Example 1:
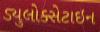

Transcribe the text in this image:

ડ્યુલોક્સેટાઇન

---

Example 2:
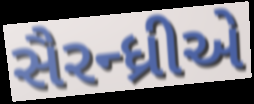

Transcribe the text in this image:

સૈરન્ધ્રીએ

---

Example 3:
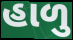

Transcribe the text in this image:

હાળુ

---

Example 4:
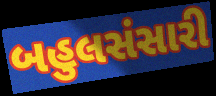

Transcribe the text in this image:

બહુલસંસારી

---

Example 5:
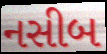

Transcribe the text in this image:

નસીબ